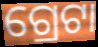
ଗ୍ରେଟା